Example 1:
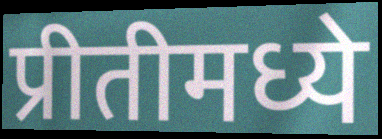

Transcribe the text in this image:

प्रीतीमध्ये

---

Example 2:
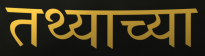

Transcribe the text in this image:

तथ्याच्या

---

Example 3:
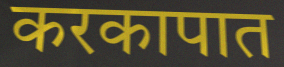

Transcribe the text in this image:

करकापात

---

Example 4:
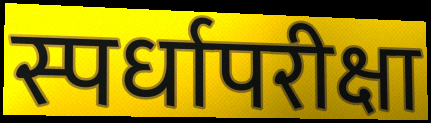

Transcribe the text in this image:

स्पर्धापरीक्षा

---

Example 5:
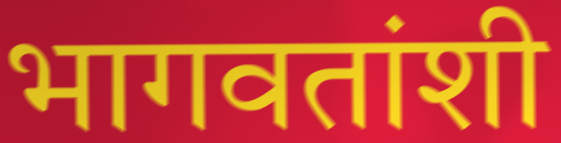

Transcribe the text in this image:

भागवतांशी